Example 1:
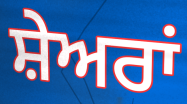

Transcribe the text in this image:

ਸ਼ੇਅਰਾਂ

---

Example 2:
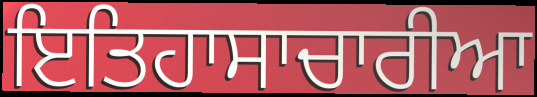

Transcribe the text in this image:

ਇਤਿਹਾਸਾਚਾਰੀਆ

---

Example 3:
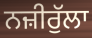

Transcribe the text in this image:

ਨਜ਼ੀਰੁੱਲਾ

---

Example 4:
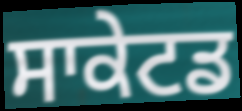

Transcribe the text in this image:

ਸਾਕੇਟਡ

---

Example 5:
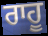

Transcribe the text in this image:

ਰਾਹੂ